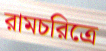
রামচরিত্রে